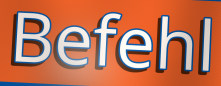
Befehl